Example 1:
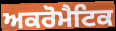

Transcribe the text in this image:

ਅਕਰੋਮੈਟਿਕ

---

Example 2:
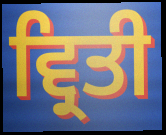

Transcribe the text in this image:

ਵ੍ਰਿਤੀ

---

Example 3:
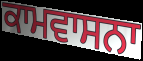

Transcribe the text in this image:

ਕਾਮਵਾਸਨਾ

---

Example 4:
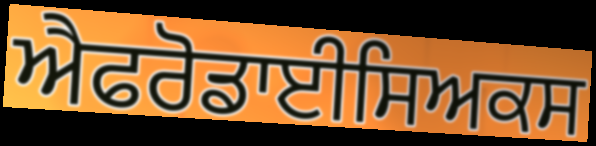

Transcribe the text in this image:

ਐਫਰੋਡਾਈਸਿਅਕਸ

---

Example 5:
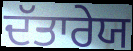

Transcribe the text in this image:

ਦੱਤਾਰੇਯ